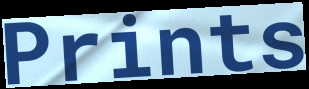
Prints